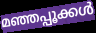
മഞ്ഞപ്പൂക്കൾ